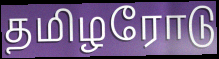
தமிழரோடு